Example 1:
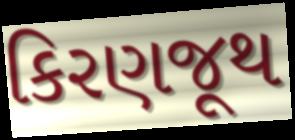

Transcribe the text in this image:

કિરણજૂથ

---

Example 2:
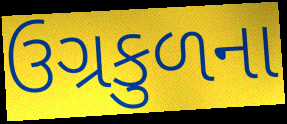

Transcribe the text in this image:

ઉગ્રકુળના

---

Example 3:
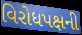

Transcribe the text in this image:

વિરોધપક્ષની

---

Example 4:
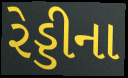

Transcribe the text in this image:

રેડ્ડીના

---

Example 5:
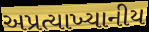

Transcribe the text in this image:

અપ્રત્યાખ્યાનીય